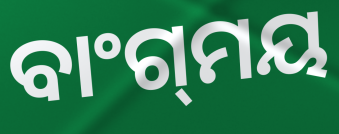
ବାଂଗ୍‌ମୟ